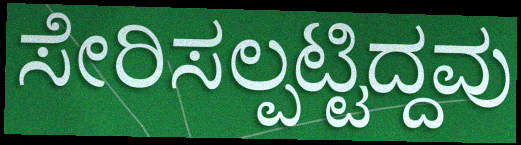
ಸೇರಿಸಲ್ಪಟ್ಟಿದ್ದವು